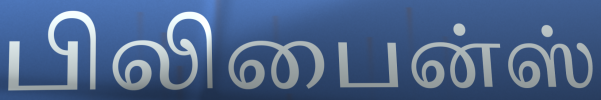
பிலிபைன்ஸ்